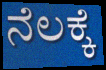
ನೆಲಕ್ಕೆ